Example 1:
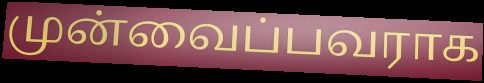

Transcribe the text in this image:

முன்வைப்பவராக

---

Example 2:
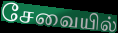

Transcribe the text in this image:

சேவையில்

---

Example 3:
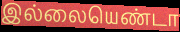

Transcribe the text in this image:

இல்லையெண்டா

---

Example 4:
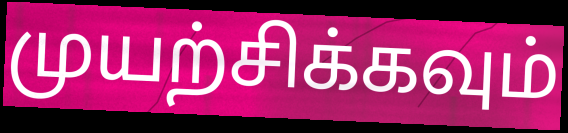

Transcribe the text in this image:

முயற்சிக்கவும்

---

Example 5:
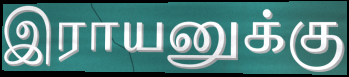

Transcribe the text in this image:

இராயனுக்கு